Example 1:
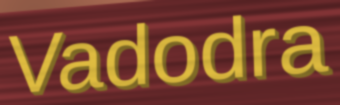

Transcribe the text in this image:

Vadodra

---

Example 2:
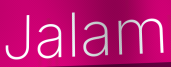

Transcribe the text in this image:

Jalam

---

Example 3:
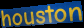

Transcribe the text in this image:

houston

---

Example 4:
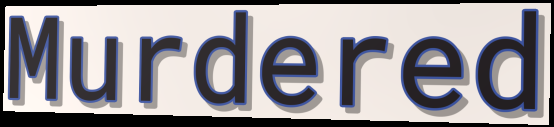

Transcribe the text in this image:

Murdered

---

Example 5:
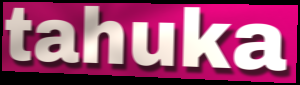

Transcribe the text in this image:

tahuka